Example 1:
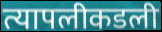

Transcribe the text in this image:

त्यापलीकडली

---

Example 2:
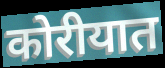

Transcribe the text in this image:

कोरीयात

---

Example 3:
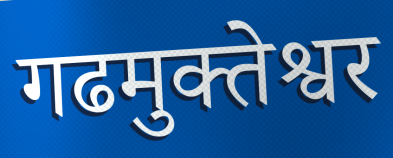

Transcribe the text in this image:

गढमुक्तेश्वर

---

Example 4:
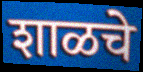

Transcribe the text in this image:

शाळचे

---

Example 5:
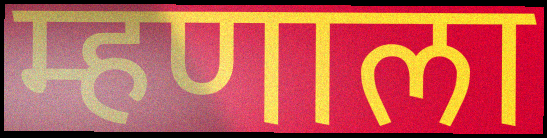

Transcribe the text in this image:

म्‍हणाला